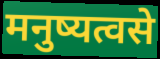
मनुष्यत्वसे